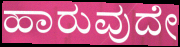
ಹಾರುವುದೇ